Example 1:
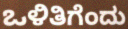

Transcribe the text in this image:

ಒಳಿತಿಗೆಂದು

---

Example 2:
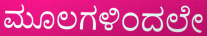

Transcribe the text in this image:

ಮೂಲಗಳಿಂದಲೇ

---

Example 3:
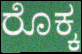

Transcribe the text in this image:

ರೊಕ್ಕ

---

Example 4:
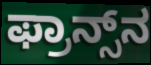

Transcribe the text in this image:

ಫ್ರಾನ್ಸ್‌ನ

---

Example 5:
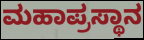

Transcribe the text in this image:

ಮಹಾಪ್ರಸ್ಥಾನ